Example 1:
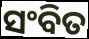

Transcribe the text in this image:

ସଂବିତ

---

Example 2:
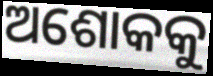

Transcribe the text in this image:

ଅଶୋକକୁ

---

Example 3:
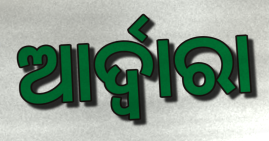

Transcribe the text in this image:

ଆର୍ଦ୍ୱାରା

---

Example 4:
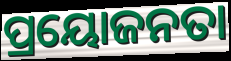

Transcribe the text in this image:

ପ୍ରୟୋଜନତା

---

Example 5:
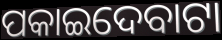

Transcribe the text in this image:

ପକାଇଦେବାଟା